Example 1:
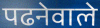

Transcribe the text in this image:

पढनेवाले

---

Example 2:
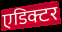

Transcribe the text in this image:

एडिक्टर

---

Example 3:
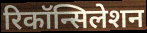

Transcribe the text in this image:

रिकॉन्सिलेशन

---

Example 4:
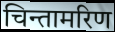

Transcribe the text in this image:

चिन्तामरिण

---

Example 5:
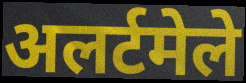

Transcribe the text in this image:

अलर्टमेले